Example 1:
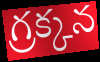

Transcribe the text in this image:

గ్రక్కన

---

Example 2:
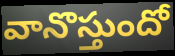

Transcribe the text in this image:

వానొస్తుందో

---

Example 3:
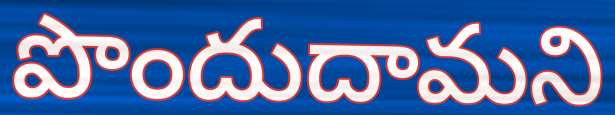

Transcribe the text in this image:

పొందుదామని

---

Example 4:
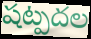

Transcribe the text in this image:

షట్పదల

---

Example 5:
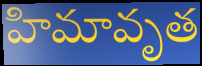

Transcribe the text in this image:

హిమావృత